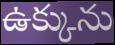
ఉక్కును